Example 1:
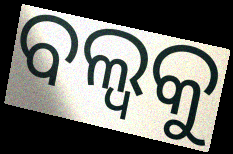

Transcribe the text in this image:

ବଲ୍ବକୁ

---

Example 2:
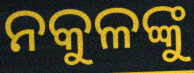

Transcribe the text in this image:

ନକୁଳଙ୍କୁ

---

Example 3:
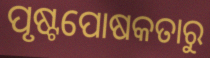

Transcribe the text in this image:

ପୃଷ୍ଟପୋଷକତାରୁ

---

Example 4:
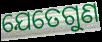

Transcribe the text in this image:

ଯେତେଗୁଣ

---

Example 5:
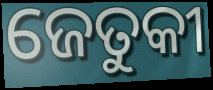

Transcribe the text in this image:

ଜେତୁକୀ